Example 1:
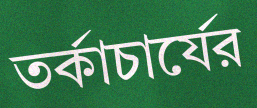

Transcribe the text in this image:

তর্কাচার্যের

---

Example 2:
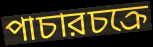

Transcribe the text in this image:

পাচারচক্রে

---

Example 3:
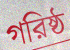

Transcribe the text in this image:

গরিষ্ঠ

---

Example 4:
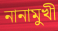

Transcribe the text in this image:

নানামুখী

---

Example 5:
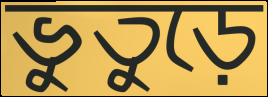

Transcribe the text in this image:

ভুতুড়ে